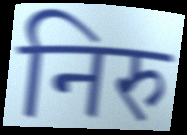
निरु